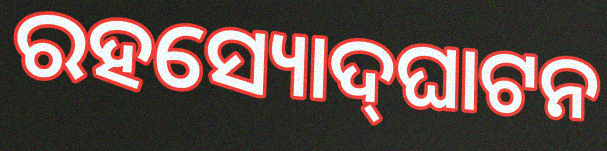
ରହସ୍ୟୋଦ୍‍ଘାଟନ